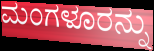
ಮಂಗಳೂರನ್ನು